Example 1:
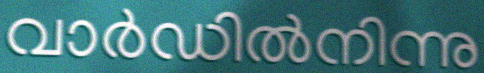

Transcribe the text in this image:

വാർഡിൽനിന്നു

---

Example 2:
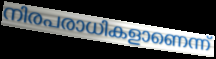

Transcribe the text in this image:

നിരപരാധികളാണെന്ന്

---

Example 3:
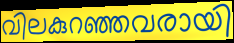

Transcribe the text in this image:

വിലകുറഞ്ഞവരായി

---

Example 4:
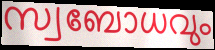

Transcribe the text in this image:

സ്വബോധവും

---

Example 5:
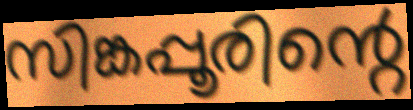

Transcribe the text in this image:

സിങ്കപ്പൂരിന്റെ